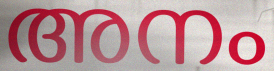
അനം